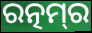
ରତ୍ନମ୍‌ର